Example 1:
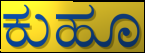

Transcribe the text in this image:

ಕುಹೂ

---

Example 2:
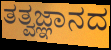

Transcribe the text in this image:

ತತ್ವಜ್ಞಾನದ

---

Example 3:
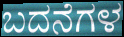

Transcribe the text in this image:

ಬದನೆಗಳ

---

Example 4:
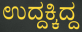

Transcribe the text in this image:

ಉದ್ದಕ್ಕಿದ್ದ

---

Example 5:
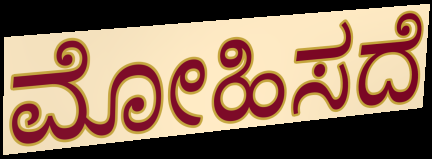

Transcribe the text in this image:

ಮೋಹಿಸದೆ